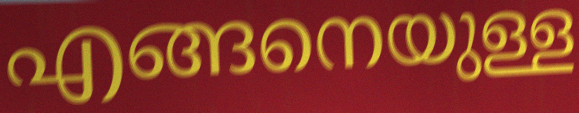
എങ്ങനെയുള്ള